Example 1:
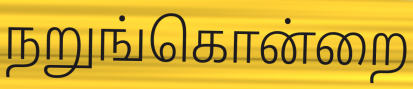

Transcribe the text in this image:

நறுங்கொன்றை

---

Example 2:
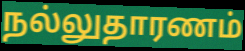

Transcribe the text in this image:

நல்லுதாரணம்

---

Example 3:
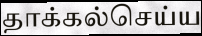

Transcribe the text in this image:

தாக்கல்செய்ய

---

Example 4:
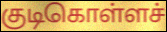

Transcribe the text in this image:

குடிகொள்ளச்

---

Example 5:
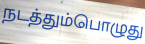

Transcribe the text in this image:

நடத்தும்பொழுது